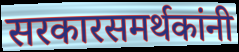
सरकारसमर्थकांनी